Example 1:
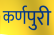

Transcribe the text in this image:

कर्णपुरी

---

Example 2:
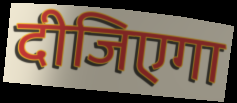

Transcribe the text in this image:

दीजिएगा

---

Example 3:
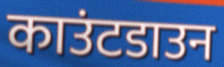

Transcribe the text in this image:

काउंटडाउन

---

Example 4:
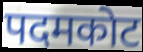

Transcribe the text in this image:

पदमकोट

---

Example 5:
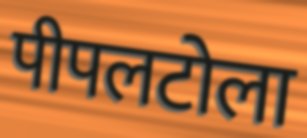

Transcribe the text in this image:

पीपलटोला